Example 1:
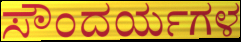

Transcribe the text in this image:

ಸೌಂದರ್ಯಗಳ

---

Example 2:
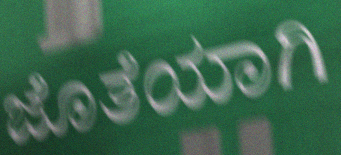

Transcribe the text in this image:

ಜೊತೆಯಾಗಿ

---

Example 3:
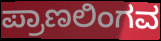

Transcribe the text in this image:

ಪ್ರಾಣಲಿಂಗವ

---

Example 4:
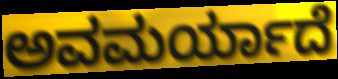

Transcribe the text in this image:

ಅವಮರ್ಯಾದೆ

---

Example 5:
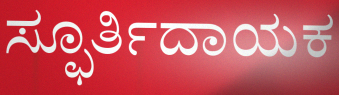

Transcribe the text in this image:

ಸ್ಫೂರ್ತಿದಾಯಕ